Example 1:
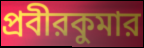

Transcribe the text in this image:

প্রবীরকুমার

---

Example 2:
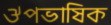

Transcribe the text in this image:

ঔপভাষিক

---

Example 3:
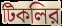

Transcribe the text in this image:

টিকলির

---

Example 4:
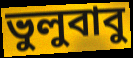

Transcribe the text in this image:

ভুলুবাবু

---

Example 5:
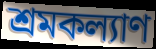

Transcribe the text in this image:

শ্রমকল্যাণ